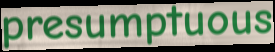
presumptuous